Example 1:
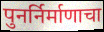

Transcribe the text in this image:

पुनर्निर्माणाचा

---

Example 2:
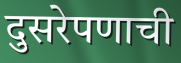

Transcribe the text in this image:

दुसरेपणाची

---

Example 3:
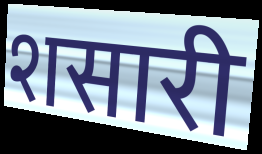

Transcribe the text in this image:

शसारी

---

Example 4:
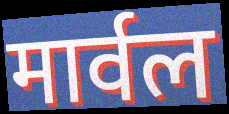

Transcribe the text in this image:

मार्वल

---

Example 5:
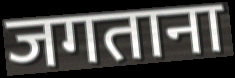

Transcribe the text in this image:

जगताना